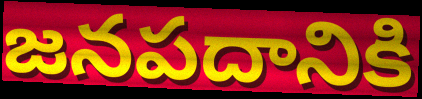
జనపదానికి